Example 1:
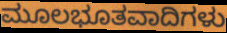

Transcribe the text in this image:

ಮೂಲಭೂತವಾದಿಗಳು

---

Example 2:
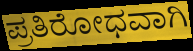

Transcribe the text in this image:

ಪ್ರತಿರೋಧವಾಗಿ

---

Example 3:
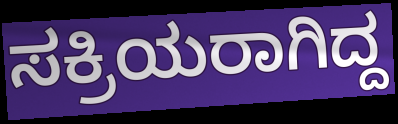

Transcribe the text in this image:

ಸಕ್ರಿಯರಾಗಿದ್ದ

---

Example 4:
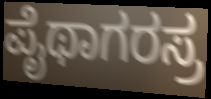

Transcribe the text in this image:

ಪೈಥಾಗರಸ್ರ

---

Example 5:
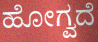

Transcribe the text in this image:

ಹೋಗ್ವದೆ